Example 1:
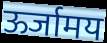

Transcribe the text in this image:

ऊर्जामय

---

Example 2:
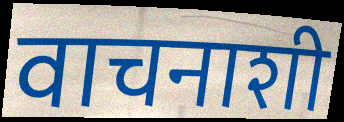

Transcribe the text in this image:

वाचनाशी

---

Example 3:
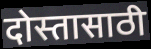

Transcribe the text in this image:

दोस्तासाठी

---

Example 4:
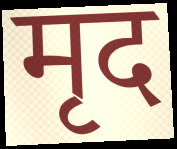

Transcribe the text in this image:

मृद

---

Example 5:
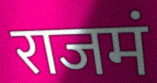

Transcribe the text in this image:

राजमं